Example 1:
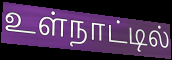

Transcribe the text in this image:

உள்நாட்டில்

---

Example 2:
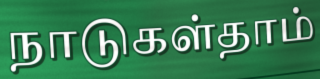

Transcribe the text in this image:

நாடுகள்தாம்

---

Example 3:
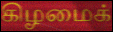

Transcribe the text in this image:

கிழமைக்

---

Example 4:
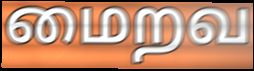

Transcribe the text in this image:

மைறவ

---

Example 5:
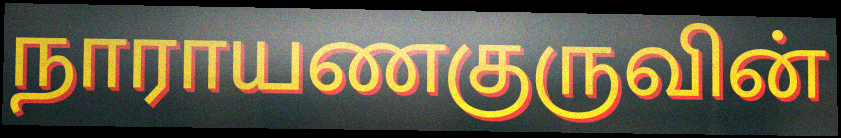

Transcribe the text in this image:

நாராயணகுருவின்